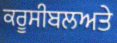
ਕਰੂਸੀਬਲਅਤੇ